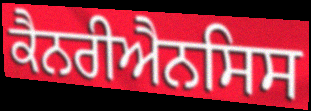
ਕੈਨਰੀਐਨਸਿਸ